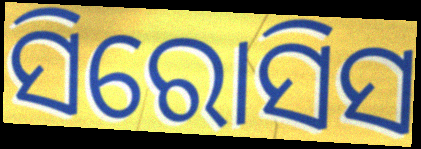
ସିରୋସିସ